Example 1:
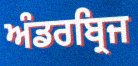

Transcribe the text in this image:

ਅੰਡਰਬ੍ਰਿਜ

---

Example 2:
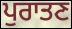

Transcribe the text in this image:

ਪੁਰਾਤਣ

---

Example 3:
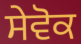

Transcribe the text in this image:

ਸੇਵੋਕ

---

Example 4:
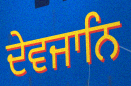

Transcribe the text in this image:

ਦੇਵਜਾਨਿ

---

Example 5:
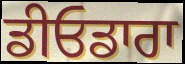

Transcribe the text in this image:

ਡੀਓਡਾਰਾ